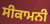
ਸੀਕਾਮਨੀ